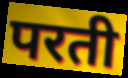
परती